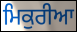
ਮਿਕੁਰੀਆ